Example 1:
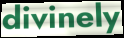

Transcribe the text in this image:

divinely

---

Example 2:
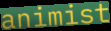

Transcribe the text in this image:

animist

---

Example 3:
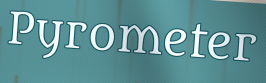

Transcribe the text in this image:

Pyrometer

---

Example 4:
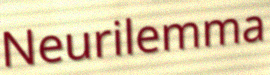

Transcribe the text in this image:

Neurilemma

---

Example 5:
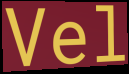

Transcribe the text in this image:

Vel